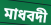
মাধবদী